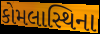
કોમલાસ્થિના